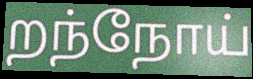
றந்நோய்